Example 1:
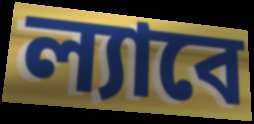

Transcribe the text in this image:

ল্যাবে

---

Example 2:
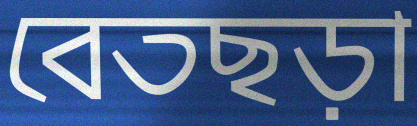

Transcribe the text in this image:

বেতছড়া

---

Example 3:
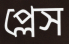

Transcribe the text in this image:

প্লেস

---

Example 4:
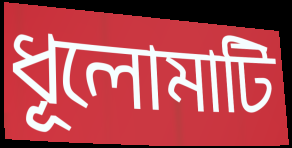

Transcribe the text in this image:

ধূলোমাটি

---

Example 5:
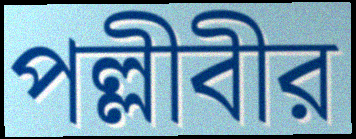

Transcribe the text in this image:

পল্লীবীর